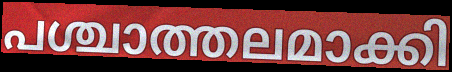
പശ്ചാത്തലമാക്കി